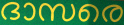
ദാസരെ